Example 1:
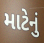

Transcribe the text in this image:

માટેનું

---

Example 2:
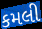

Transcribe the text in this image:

કમલી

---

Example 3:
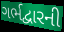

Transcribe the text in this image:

ગર્ભદ્વારની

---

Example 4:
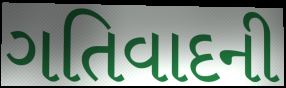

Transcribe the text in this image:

ગતિવાદની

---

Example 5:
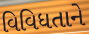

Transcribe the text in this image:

વિવિધતાને